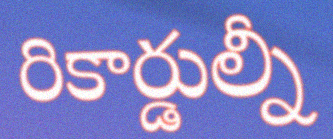
రికార్డుల్నీ